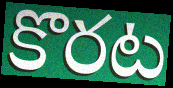
కొరట